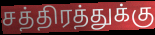
சத்திரத்துக்கு